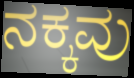
ನಕ್ಕವು